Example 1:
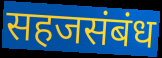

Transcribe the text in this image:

सहजसंबंध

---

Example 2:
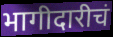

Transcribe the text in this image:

भागीदारीचं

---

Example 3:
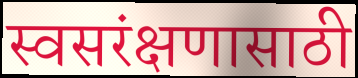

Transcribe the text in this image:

स्वसरंक्षणासाठी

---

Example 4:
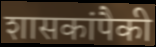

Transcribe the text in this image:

शासकांपैकी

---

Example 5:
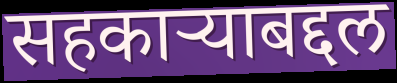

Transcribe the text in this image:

सहकाऱ्याबद्दल